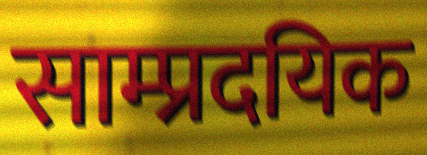
साम्प्रदयिक